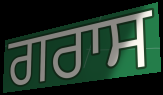
ਗਰਾਸ